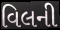
વિલની